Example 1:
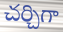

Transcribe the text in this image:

చర్చిగా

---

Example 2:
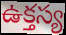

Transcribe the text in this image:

ఉక్తస్య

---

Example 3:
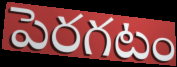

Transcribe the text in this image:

పెరగటం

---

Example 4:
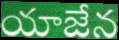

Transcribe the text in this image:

యాజేన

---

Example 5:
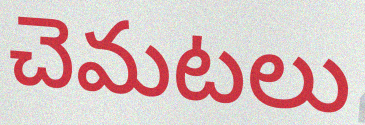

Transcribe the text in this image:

చెమటలు